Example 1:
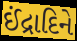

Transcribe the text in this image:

ઈંદ્રાદિને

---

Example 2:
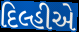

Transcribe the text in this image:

દિલ્હીએ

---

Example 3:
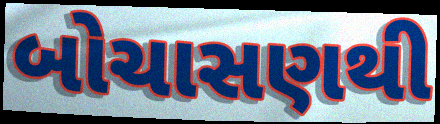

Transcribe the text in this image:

બોચાસણથી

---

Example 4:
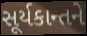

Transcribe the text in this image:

સૂર્યકાન્તને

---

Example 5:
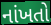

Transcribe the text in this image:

નાંખતો